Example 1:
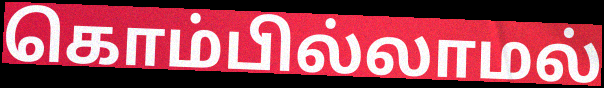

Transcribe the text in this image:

கொம்பில்லாமல்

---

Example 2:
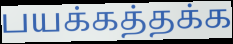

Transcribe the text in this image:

பயக்கத்தக்க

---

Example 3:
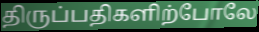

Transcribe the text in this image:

திருப்பதிகளிற்போலே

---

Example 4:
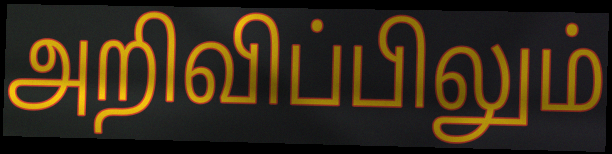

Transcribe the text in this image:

அறிவிப்பிலும்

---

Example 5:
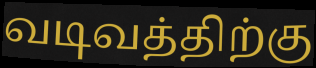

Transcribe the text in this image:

வடிவத்திற்கு